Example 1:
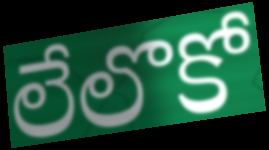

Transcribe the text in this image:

లేలొకో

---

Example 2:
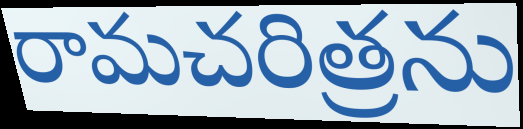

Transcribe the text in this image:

రామచరిత్రను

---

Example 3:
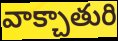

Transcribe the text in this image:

వాక్చాతురి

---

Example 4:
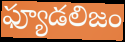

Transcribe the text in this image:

ఫ్యూడలిజం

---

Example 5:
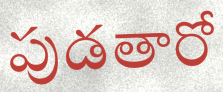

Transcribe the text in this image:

పుడతారో